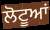
ਲੋਟੂਆਂ